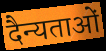
दैन्यताओं